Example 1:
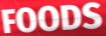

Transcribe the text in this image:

FOODS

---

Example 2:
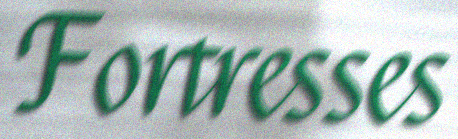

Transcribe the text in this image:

Fortresses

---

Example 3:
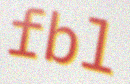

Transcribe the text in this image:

fbl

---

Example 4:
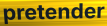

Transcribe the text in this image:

pretender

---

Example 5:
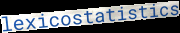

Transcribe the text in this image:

lexicostatistics